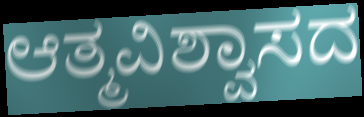
ಆತ್ಮವಿಶ್ವಾಸದ